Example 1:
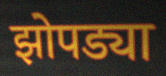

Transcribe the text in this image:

झोपड्या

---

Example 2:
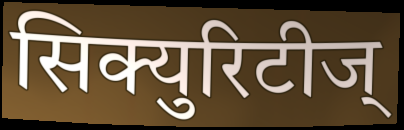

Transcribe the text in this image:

सिक्युरिटीज्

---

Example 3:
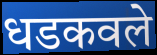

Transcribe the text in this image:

धडकवले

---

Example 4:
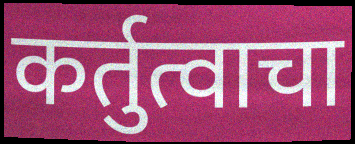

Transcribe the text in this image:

कर्तुत्वाचा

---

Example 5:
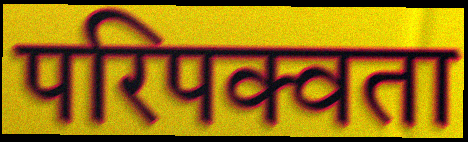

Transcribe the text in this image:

परिपक्‍वता